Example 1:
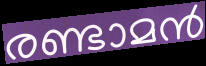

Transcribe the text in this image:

രണ്ടാമൻ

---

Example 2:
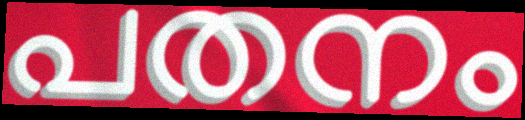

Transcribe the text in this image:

പതനം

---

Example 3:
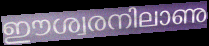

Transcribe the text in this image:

ഈശ്വരനിലാണു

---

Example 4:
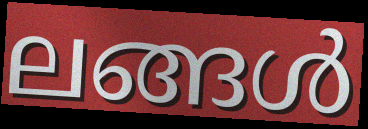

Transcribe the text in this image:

ലങ്ങൾ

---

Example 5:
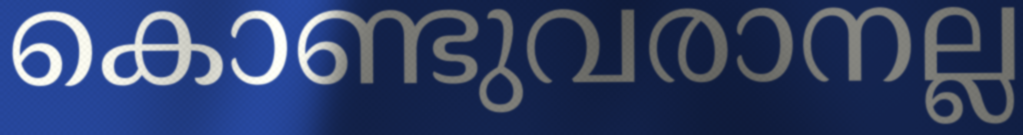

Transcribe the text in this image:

കൊണ്ടുവരാനല്ല